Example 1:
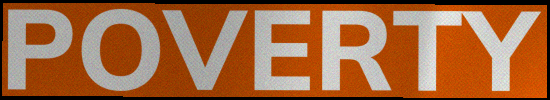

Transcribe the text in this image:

POVERTY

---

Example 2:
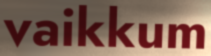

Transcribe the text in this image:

vaikkum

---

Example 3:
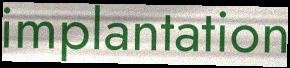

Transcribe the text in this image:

implantation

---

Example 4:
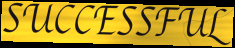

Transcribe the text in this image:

SUCCESSFUL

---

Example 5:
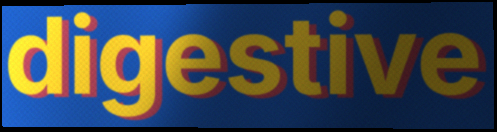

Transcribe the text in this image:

digestive